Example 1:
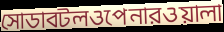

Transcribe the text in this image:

সোডাবটলওপেনারওয়ালা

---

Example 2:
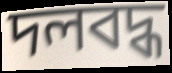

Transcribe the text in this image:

দলবদ্ধ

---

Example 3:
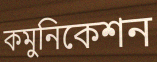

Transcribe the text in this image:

কমুনিকেশন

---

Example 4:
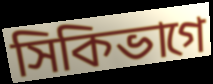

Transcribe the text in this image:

সিকিভাগে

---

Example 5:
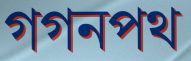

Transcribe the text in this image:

গগনপথ